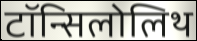
टॉन्सिलोलिथ